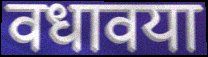
वधावया